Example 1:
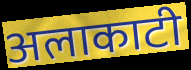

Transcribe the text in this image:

अलाकाटी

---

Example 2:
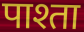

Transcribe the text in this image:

पाश्ता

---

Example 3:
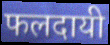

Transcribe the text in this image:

फलदायी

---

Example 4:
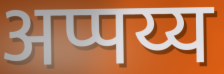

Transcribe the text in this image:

अप्पय्य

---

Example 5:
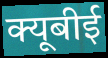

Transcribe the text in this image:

क्यूबीई